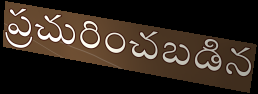
ప్రచురించబడిన